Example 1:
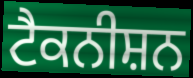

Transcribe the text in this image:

ਟੈਕਨੀਸ਼ਨ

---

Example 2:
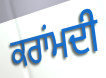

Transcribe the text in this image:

ਕਰਾਂਮਦੀ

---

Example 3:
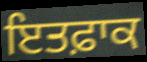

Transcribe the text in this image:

ਇਤਫ਼ਾਕ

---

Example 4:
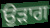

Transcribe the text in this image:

ਉੜਾਗ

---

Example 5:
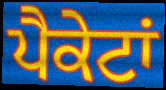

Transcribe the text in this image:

ਪੈਕੇਟਾਂ